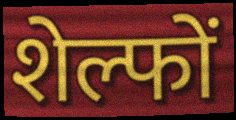
शेल्फों